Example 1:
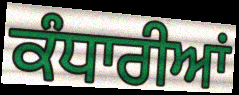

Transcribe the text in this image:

ਕੰਧਾਰੀਆਂ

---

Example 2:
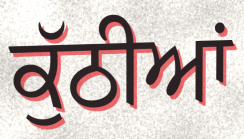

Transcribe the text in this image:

ਕੁੱਠੀਆਂ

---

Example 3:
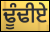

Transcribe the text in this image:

ਢੂੰਢੀਏ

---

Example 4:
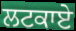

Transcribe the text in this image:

ਲਟਕਾਏ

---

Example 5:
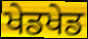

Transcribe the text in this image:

ਖੇਡਖੇਡ